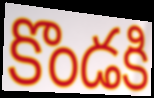
కొండకి